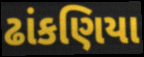
ઢાંકણિયા